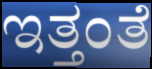
ಇತ್ತಂತೆ